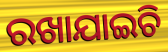
ରଖାଯାଇଚି